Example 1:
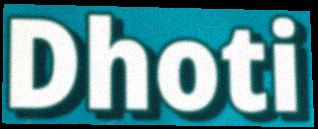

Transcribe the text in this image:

Dhoti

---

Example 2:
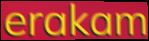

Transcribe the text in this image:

erakam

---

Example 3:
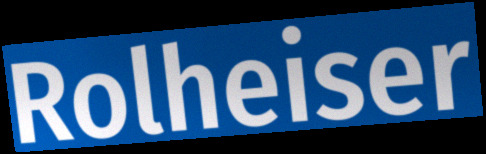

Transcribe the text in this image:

Rolheiser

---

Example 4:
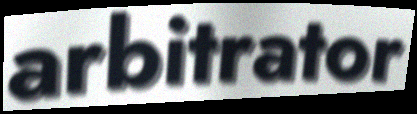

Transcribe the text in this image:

arbitrator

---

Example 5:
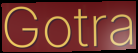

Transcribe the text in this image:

Gotra